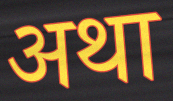
अथा